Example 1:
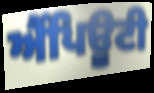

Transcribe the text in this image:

ਐਂਪਿਊਟੀ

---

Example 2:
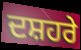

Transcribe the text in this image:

ਦਸ਼ਹਰੇ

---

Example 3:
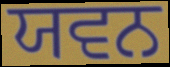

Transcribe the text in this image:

ਯਵਨ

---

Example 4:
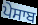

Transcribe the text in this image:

ਪੇਸਾਬ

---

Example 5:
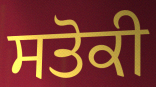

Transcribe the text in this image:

ਸਤੋਕੀ